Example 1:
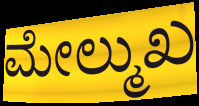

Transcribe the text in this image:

ಮೇಲ್ಮುಖ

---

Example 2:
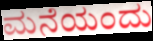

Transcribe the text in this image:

ಮನೆಯಂದು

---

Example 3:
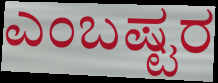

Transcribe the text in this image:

ಎಂಬಷ್ಟರ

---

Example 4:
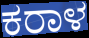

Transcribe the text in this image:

ಕರಾಳ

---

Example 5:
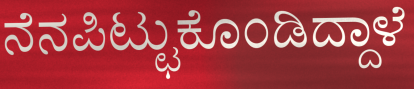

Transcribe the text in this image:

ನೆನಪಿಟ್ಟುಕೊಂಡಿದ್ದಾಳೆ